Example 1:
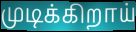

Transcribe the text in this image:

முடிக்கிறாய்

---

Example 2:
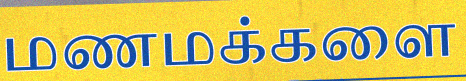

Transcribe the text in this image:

மணமக்களை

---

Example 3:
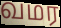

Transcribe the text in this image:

வமர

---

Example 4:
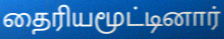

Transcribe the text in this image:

தைரியமூட்டினார்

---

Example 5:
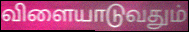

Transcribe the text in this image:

விளையாடுவதும்